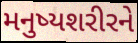
મનુષ્યશરીરને